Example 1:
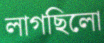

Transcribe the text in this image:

লাগছিলো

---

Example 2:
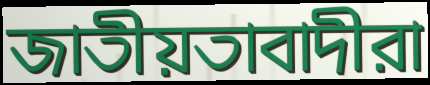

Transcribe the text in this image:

জাতীয়তাবাদীরা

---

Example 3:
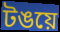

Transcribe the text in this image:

টঙয়ে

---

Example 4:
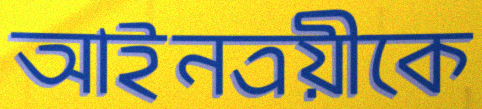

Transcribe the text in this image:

আইনত্রয়ীকে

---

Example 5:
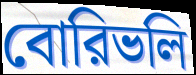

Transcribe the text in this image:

বোরিভলি